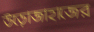
উড়োজাহাজের